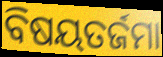
ବିଷୟତର୍ଜମା